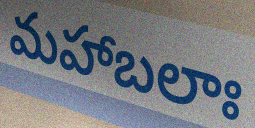
మహాబలాః